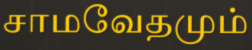
சாமவேதமும்